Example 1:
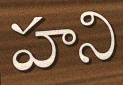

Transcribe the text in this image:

హని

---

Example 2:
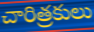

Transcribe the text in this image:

చారిత్రకులు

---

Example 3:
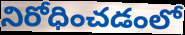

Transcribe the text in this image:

నిరోధించడంలో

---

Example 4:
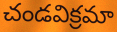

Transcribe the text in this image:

చండవిక్రమా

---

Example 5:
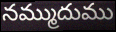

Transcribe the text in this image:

నమ్ముదుము